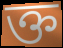
ক্ত